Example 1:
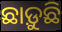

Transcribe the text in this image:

ଛାଡ଼ୁଛି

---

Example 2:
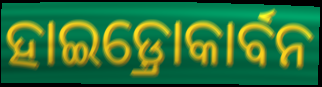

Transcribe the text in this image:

ହାଇଡ଼୍ରୋକାର୍ବନ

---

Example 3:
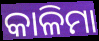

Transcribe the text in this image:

କାଳିମା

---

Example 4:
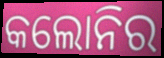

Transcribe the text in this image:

କଲୋନିର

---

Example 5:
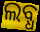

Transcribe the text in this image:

ଲବ୍ଧ